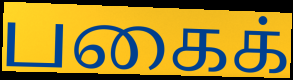
பகைக்